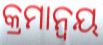
କ୍ରମାନ୍ୱୟ